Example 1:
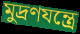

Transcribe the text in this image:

মুদ্রণযন্ত্রে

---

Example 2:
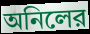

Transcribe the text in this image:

অনিলের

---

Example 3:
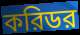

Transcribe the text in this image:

করিডর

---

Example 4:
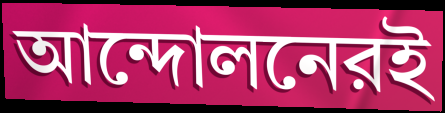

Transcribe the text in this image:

আন্দোলনেরই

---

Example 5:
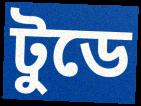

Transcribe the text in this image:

টুডে